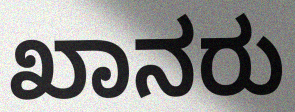
ಖಾನರು